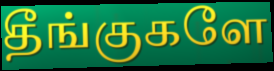
தீங்குகளே